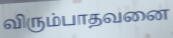
விரும்பாதவனை